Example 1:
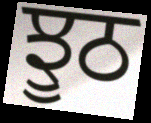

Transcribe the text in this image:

ਝੂਠ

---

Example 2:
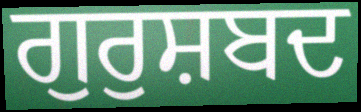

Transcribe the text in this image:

ਗੁਰੁਸ਼ਬਦ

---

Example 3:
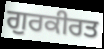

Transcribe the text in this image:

ਗੁਰਕੀਰਤ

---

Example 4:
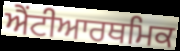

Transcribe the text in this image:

ਐਂਟੀਆਰਥਮਿਕ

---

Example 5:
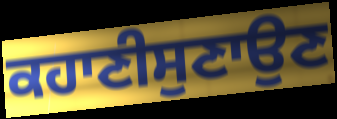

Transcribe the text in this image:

ਕਹਾਣੀਸੁਣਾਉਣ